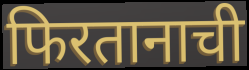
फिरतानाची